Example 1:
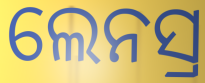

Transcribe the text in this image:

ଲେନସ୍ର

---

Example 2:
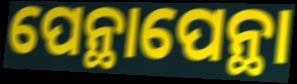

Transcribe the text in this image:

ପେନ୍ଥାପେନ୍ଥା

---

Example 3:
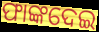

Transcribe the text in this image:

ଫାଙ୍କଦେଇ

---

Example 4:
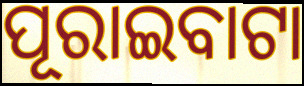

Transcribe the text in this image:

ପୂରାଇବାଟା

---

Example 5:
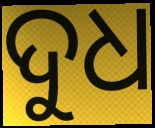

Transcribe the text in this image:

ଦୁଧ